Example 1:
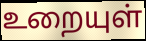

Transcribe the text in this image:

உறையுள்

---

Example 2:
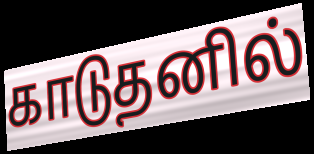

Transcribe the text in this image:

காடுதனில்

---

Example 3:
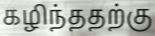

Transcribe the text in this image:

கழிந்ததற்கு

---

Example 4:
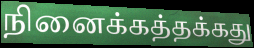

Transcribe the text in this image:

நினைக்கத்தக்கது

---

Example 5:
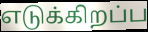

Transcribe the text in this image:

எடுக்கிறப்ப